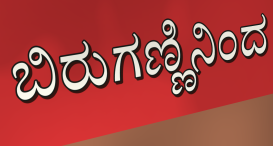
ಬಿರುಗಣ್ಣಿನಿಂದ